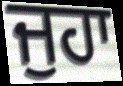
ਜੁਹਾ